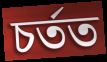
চৰ্তত